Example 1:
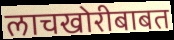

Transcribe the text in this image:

लाचखोरीबाबत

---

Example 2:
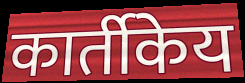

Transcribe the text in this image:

कार्तीकेय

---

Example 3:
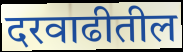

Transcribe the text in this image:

दरवाढीतील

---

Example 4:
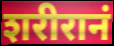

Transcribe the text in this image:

शरीरानं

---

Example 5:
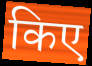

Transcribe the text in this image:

किए